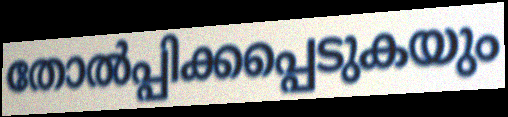
തോൽപ്പിക്കപ്പെടുകയും